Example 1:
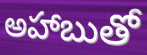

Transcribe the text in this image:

అహాబుతో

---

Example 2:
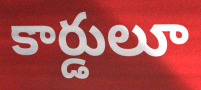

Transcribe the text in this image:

కార్డులూ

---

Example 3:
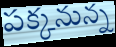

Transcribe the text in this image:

పక్కనున్న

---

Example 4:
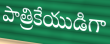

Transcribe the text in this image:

పాత్రికేయుడిగా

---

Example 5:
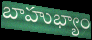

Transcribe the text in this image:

బాహుభ్యాం